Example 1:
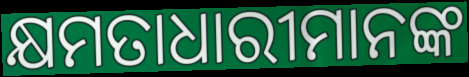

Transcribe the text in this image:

କ୍ଷମତାଧାରୀମାନଙ୍କ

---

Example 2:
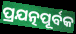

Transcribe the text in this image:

ପ୍ରଯତ୍ନପୂର୍ବକ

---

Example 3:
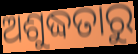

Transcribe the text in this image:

ଅଶୁଦ୍ଧତାରୁ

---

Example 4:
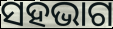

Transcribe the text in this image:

ସହଭାଗ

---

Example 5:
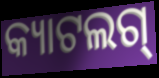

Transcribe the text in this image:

କ୍ୟାଟଲଗ୍